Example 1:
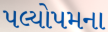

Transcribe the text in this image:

પલ્યોપમના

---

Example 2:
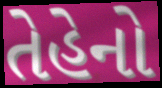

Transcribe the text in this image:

તેહેનો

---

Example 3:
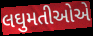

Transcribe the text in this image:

લઘુમતીઓએ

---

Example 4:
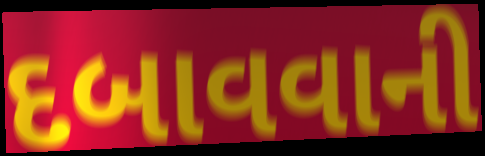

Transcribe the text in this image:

દબાવવાની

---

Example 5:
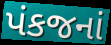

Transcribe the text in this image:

પંકજનાં